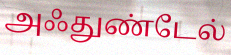
அஃதுண்டேல்